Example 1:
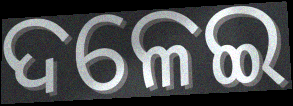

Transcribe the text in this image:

ଦଳେଇ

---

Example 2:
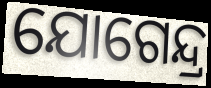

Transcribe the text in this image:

ଯୋଗେନ୍ଦ୍ର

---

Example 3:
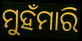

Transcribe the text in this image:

ମୁହଁମାରି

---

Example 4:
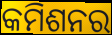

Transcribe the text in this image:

କମିଶନର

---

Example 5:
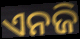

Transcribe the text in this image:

ଏନଜି